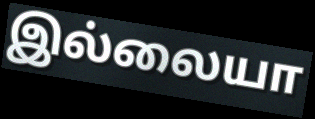
இல்லையா